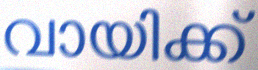
വായിക്ക്